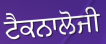
ਟੈਕਨਾਲੋਜੀ